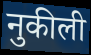
नुकीली